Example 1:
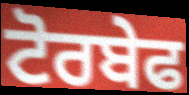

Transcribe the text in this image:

ਟੋਰਬੇਫ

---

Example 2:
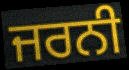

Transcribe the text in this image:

ਜਰਨੀ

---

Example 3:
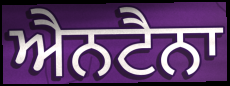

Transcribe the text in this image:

ਐਨਟੈਨਾ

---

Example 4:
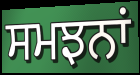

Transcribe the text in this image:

ਸਮਝਨਾਂ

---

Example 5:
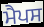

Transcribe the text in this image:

ਮੈਪਸ